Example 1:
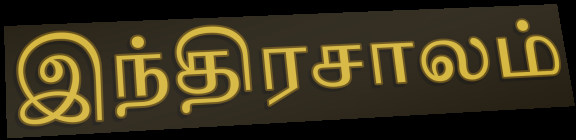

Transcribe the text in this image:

இந்திரசாலம்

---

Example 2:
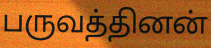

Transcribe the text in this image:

பருவத்தினன்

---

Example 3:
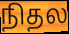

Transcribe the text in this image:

நிதல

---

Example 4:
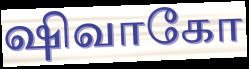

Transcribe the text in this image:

ஷிவாகோ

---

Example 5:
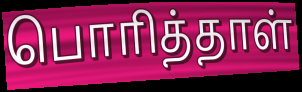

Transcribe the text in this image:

பொரித்தாள்